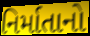
નિર્માતાનો